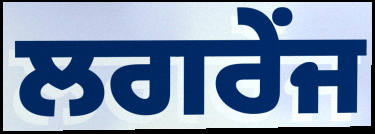
ਲਗਰੇਂਜ